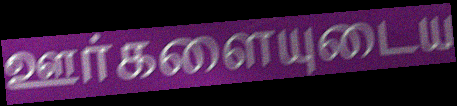
ஊர்களையுடைய